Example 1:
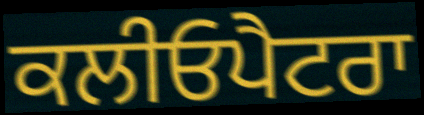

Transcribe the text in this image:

ਕਲੀਓਪੈਟਰਾ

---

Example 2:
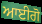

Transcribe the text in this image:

ਆਈਗੋ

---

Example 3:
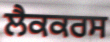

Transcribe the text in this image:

ਲੈਕਕਰਸ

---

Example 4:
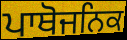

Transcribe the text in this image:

ਪਾਥੋਜਨਿਕ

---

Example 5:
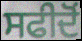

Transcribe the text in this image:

ਸਫੀਦੋਂ